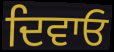
ਦਿਵਾਓ